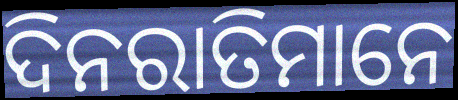
ଦିନରାତିମାନେ